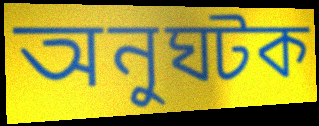
অনুঘটক